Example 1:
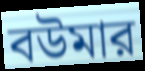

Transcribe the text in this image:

বউমার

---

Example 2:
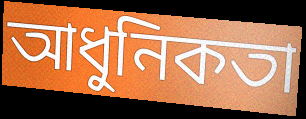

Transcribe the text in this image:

আধুনিকতা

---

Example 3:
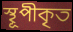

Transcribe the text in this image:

স্থূপীকৃত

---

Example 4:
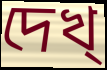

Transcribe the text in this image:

দেখ্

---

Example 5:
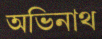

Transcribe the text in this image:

অভিনাথ